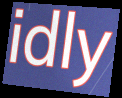
idly